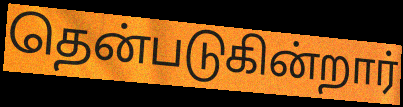
தென்படுகின்றார்